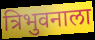
त्रिभुवनाला